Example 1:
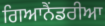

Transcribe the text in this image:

ਗਿਆਨੈਂਡਰੀਆ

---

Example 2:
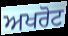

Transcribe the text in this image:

ਅਖਰੋਟ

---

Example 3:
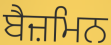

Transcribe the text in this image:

ਬੈਜ਼ਮਿਨ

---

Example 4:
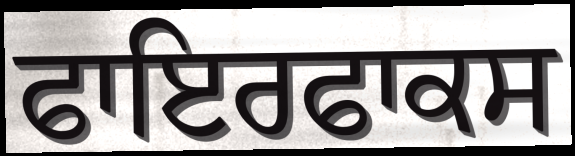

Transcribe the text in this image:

ਫਾਇਰਫਾਕਸ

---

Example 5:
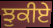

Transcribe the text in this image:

ਝੁਕੀਏ